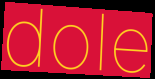
dole